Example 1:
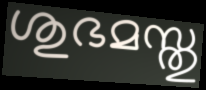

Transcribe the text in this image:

ശുഭമസ്തു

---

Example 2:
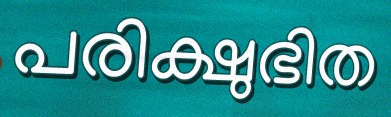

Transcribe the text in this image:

പരിക്ഷുഭിത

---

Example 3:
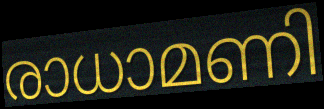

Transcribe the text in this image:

രാധാമണി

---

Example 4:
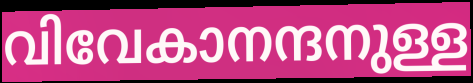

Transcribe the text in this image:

വിവേകാനന്ദനുള്ള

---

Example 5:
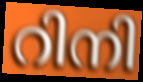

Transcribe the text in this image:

റിനി